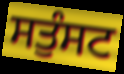
ਸਤੁੰਸਟ